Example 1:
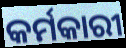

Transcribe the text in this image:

କର୍ମକାରୀ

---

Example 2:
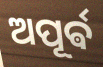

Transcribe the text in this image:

ଅପୂର୍ଵ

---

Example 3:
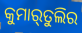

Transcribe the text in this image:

କୁମାର୍‌ତୁଲିର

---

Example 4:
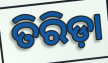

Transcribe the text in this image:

ତିରିଡ଼ା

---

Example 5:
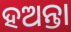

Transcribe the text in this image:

ହଅନ୍ତା